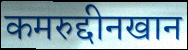
कमरुद्दीनखान